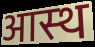
आस्थ